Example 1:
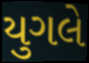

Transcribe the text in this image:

યુગલે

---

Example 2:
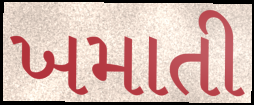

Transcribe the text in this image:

ખમાતી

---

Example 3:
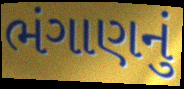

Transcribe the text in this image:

ભંગાણનું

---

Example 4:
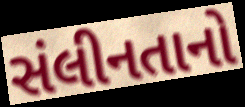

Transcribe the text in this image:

સંલીનતાનો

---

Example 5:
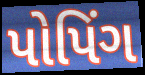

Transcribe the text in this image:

પોપિંગ